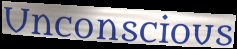
Unconscious